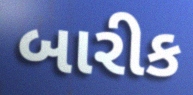
બારીક